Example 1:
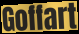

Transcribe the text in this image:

Goffart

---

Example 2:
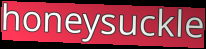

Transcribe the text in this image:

honeysuckle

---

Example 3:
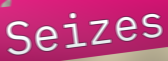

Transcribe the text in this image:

Seizes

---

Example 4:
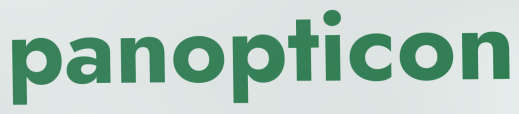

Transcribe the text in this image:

panopticon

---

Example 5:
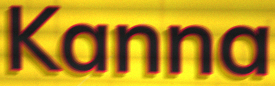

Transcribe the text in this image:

Kanna